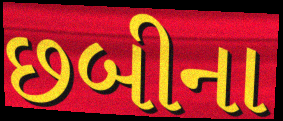
છબીના